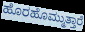
ಹೊರಹೊಮ್ಮುತ್ತಾರೆ